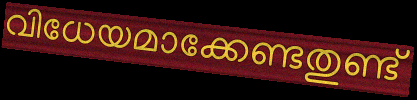
വിധേയമാക്കേണ്ടതുണ്ട്